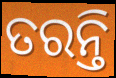
ତରନ୍ତି